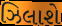
ઝિલાશે